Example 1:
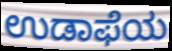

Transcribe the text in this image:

ಉಡಾಫೆಯ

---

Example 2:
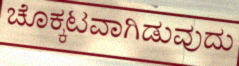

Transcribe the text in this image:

ಚೊಕ್ಕಟವಾಗಿಡುವುದು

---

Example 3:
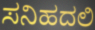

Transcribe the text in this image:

ಸನಿಹದಲಿ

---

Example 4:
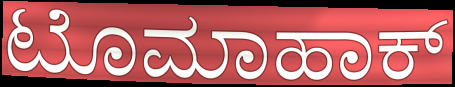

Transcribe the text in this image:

ಟೊಮಾಹಾಕ್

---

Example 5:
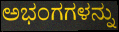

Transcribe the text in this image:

ಅಭಂಗಗಳನ್ನು